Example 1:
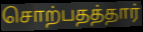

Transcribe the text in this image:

சொற்பதத்தார்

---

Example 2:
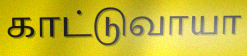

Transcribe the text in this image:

காட்டுவாயா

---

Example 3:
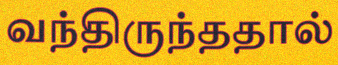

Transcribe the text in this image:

வந்திருந்ததால்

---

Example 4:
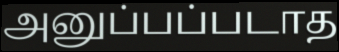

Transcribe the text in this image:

அனுப்பப்படாத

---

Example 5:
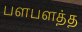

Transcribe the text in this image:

பளபளத்த